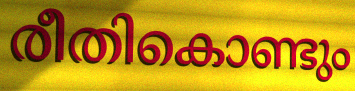
രീതികൊണ്ടും